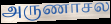
அருணாசல